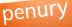
penury